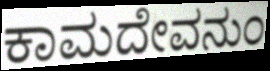
ಕಾಮದೇವನುಂ